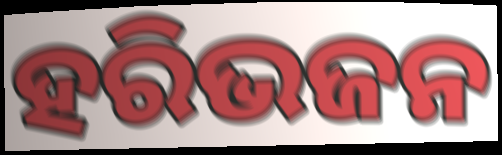
ହରିଭଜନ